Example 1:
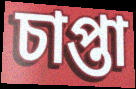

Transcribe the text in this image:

চাপ্তা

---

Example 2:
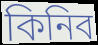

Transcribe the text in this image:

কিনিব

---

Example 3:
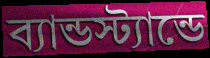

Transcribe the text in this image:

ব্যান্ডস্ট্যান্ডে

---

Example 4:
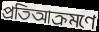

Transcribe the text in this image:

প্রতিআক্রমণে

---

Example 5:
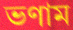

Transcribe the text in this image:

ভণাম